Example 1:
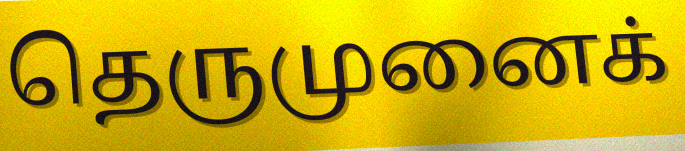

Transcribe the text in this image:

தெருமுனைக்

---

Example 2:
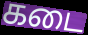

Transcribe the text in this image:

கடை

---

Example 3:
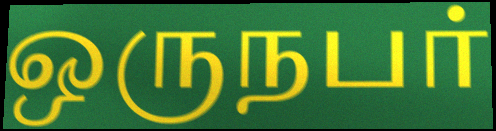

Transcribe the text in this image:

ஒருநபர்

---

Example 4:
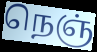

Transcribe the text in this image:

நெஞ்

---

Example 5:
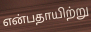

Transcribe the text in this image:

என்பதாயிற்று